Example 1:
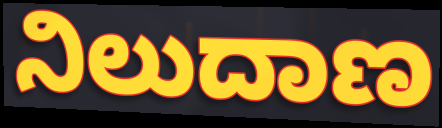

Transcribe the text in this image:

ನಿಲುದಾಣ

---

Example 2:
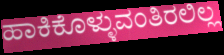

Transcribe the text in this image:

ಹಾಕಿಕೊಳ್ಳುವಂತಿರಲಿಲ್ಲ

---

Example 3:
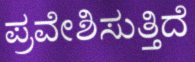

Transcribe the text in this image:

ಪ್ರವೇಶಿಸುತ್ತಿದೆ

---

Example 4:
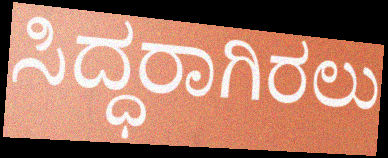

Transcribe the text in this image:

ಸಿದ್ಧರಾಗಿರಲು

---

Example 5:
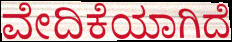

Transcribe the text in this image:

ವೇದಿಕೆಯಾಗಿದೆ